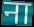
ना